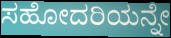
ಸಹೋದರಿಯನ್ನೇ